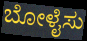
ಬೋಳೈಸು